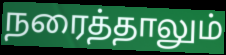
நரைத்தாலும்